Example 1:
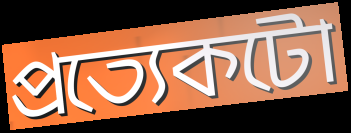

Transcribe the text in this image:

প্ৰত্যেকটো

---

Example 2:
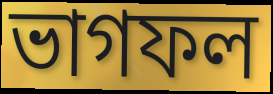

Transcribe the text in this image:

ভাগফল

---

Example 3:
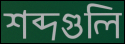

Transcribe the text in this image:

শব্দগুলি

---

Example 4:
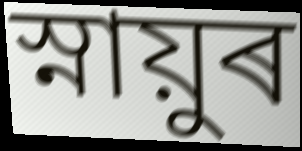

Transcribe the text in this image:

স্নায়ুৰ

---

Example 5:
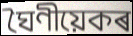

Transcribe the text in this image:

ঘৈণীয়েকৰ